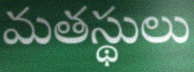
మతస్థులు